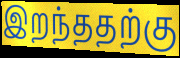
இறந்ததற்கு